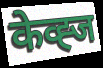
केव्ह्ज